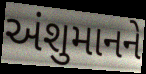
અંશુમાનને